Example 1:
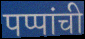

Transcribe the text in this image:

पप्पांची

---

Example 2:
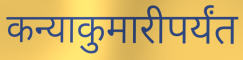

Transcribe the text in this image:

कन्याकुमारीपर्यंत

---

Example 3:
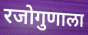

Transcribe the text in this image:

रजोगुणाला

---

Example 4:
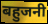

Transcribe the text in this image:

बहुजनी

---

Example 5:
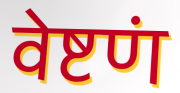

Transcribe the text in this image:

वेष्टणं